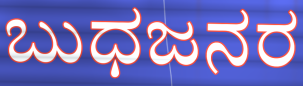
ಬುಧಜನರ